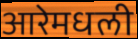
आरेमधली